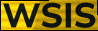
WSIS